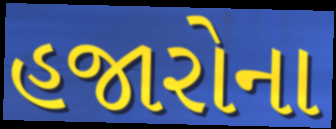
હજારોના